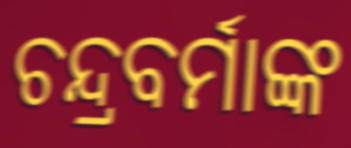
ଚନ୍ଦ୍ରବର୍ମାଙ୍କ